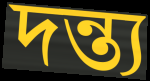
দন্ত্য